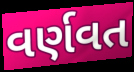
વર્ણવત